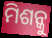
ମିଶନ୍କୁ